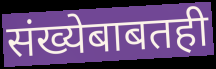
संख्येबाबतही